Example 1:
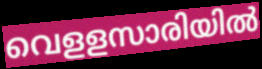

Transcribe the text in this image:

വെളളസാരിയിൽ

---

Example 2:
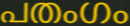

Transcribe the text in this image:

പതംഗം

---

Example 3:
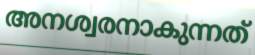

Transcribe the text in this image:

അനശ്വരനാകുന്നത്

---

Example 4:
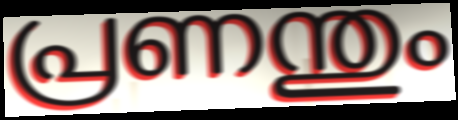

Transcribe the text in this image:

പ്രണന്തും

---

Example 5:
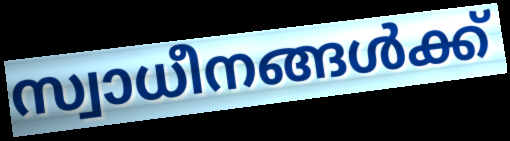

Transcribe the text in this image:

സ്വാധീനങ്ങൾക്ക്